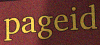
pageid